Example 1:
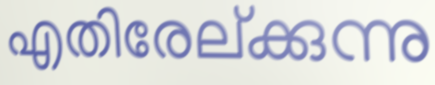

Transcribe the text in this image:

എതിരേല്ക്കുന്നു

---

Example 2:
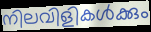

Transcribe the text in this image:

നിലവിളികൾക്കും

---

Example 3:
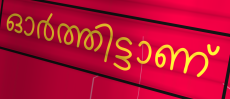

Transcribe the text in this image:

ഓർത്തിട്ടാണ്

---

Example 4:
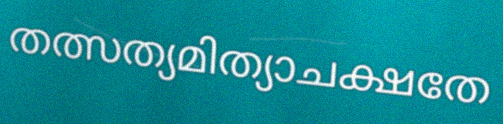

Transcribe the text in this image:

തത്സത്യമിത്യാചക്ഷതേ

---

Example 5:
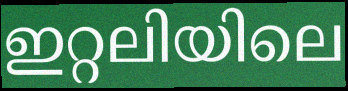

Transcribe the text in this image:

ഇറ്റലിയിലെ